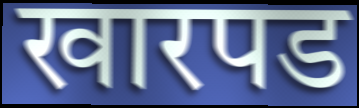
खारपड